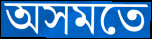
অসমতে